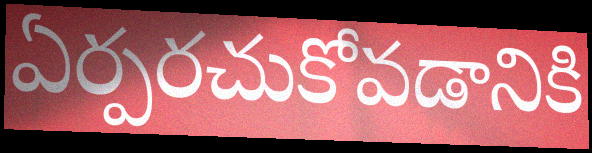
ఏర్పరచుకోవడానికి